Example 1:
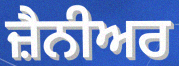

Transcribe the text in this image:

ਜ਼ੈਨੀਅਰ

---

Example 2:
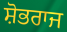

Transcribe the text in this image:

ਸ਼ੋਭਰਾਜ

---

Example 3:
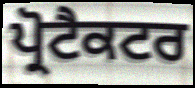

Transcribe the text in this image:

ਪ੍ਰੋਟੈਕਟਰ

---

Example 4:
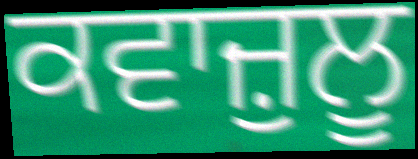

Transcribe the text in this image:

ਕਵਾਜ਼ੁਲੂ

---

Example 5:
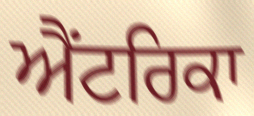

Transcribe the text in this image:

ਐਂਟਰਿਕਾ